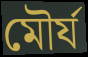
মৌৰ্য